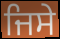
ਜਿਸੇ